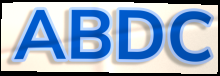
ABDC